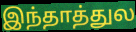
இந்தாத்துல